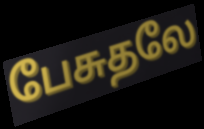
பேசுதலே